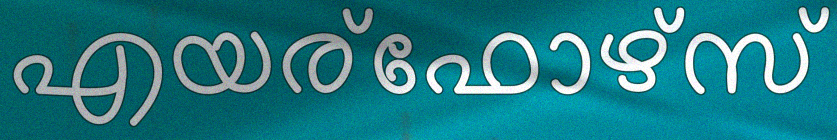
എയര്ഫോഴ്സ്